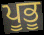
ਪੂਭੂ